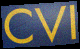
CVI